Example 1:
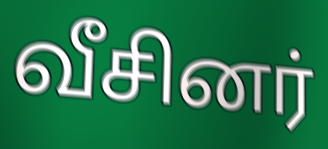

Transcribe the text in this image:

வீசினர்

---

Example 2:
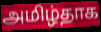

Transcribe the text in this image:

அமிழ்தாக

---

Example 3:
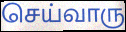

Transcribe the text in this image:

செய்வாரு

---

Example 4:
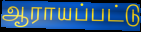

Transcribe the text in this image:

ஆராயப்பட்டு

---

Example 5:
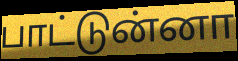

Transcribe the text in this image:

பாட்டுன்னா